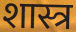
शास्त्र